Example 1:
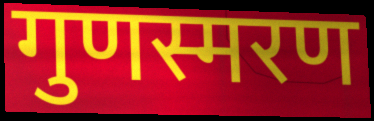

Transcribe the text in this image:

गुणस्मरण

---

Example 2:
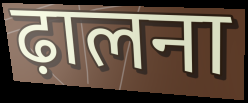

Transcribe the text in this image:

ढ़ालना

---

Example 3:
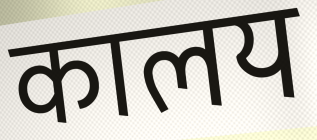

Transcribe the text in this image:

कालय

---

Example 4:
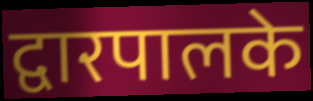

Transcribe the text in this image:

द्वारपालके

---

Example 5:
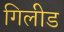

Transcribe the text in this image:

गिलीड